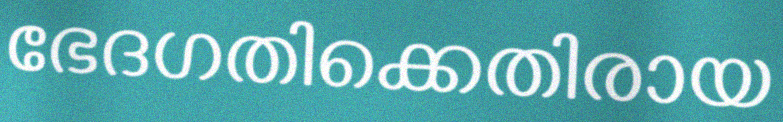
ഭേദഗതിക്കെതിരായ